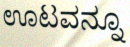
ಊಟವನ್ನೂ